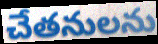
చేతనులను